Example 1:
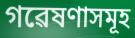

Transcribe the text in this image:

গৱেষণাসমূহ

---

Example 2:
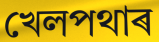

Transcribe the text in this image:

খেলপথাৰ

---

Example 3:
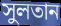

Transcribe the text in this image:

সুলতান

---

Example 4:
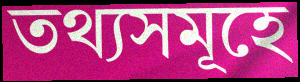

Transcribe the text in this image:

তথ্যসমূহে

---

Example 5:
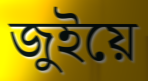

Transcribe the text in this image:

জুইয়ে